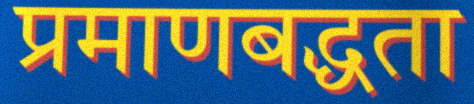
प्रमाणबद्धता